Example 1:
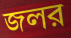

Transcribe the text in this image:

জলর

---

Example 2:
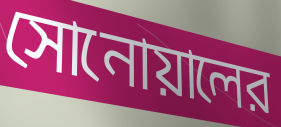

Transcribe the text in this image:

সোনোয়ালের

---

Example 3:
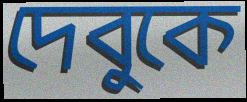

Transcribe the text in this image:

দেবুকে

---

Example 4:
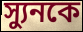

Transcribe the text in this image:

স্যুনকে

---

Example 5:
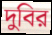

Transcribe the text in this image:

দুবির